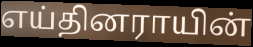
எய்தினராயின்